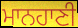
ਮਾਨਹਾਣੀ